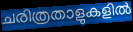
ചരിത്രതാളുകളിൽ